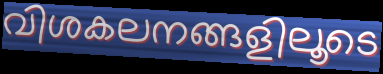
വിശകലനങ്ങളിലൂടെ